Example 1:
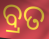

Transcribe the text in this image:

ବ୍ରତ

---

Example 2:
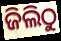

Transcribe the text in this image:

ଜିଲିଠୁ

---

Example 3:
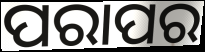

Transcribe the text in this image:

ପରାପର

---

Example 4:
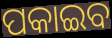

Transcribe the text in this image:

ପକାଇବ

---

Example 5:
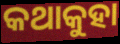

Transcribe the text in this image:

କଥାକୁହା